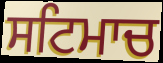
ਸਟਿਮਾਚ